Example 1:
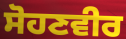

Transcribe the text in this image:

ਸੋਹਣਵੀਰ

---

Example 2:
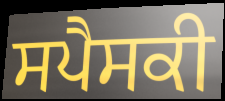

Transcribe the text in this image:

ਸਪੈਸਕੀ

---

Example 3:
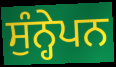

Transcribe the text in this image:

ਸੁੰਨ੍ਹੇਪਨ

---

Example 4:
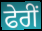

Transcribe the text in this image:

ਫੇਰੀਂ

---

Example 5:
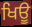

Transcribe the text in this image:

ਖਿਊ